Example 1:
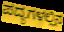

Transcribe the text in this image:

ಪದ್ಯಗಳಲ್ಲಿನ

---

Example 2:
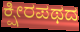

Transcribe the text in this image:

ಕ್ಷೀರಪಥದ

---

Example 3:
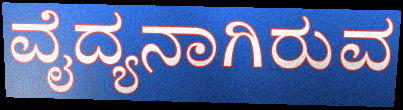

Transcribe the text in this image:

ವೈದ್ಯನಾಗಿರುವ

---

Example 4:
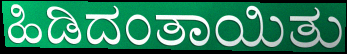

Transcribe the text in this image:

ಹಿಡಿದಂತಾಯಿತು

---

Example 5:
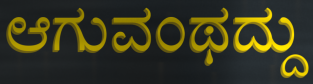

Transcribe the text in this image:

ಆಗುವಂಥದ್ದು